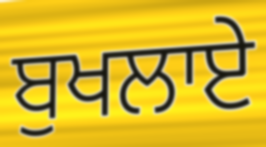
ਬੁਖਲਾਏ